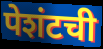
पेशंटची